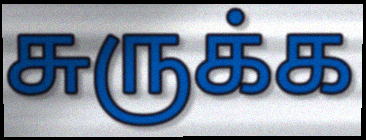
சுருக்க